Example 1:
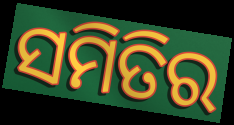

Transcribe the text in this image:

ସମିତିର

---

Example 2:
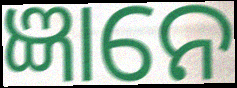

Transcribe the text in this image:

ଜ୍ଞାନେ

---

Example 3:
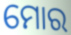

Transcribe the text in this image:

ମୋର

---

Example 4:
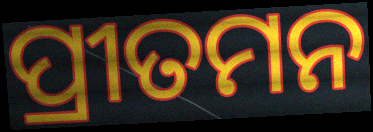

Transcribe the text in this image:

ପ୍ରୀତମନ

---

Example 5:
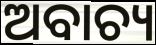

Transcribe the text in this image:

ଅବାଚ୍ୟ